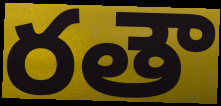
రతౌ